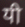
यी